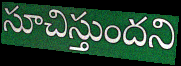
సూచిస్తుందని